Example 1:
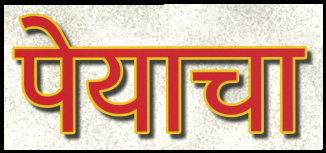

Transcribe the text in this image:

पेयाचा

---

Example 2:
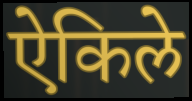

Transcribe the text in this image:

ऐकिले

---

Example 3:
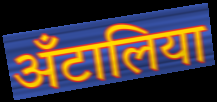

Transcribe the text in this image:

अँटालिया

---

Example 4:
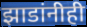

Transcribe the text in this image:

झाडांनीही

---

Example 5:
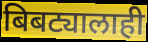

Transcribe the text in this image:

बिबट्यालाही